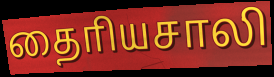
தைரியசாலி